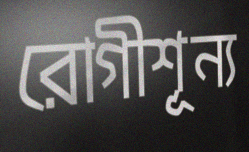
রোগীশূন্য